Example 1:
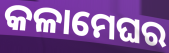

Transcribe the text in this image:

କଳାମେଘର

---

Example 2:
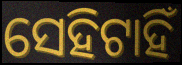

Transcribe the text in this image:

ସେହିଟାହିଁ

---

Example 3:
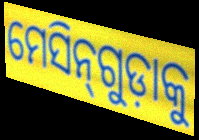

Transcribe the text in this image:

ମେସିନ୍‌ଗୁଡ଼ାକୁ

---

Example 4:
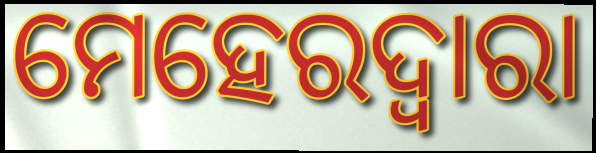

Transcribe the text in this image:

ମେହେରଦ୍ୱାରା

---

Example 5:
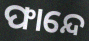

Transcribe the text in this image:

ଫାନ୍ଦେ